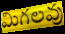
మిగలవు